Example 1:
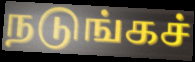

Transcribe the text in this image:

நடுங்கச்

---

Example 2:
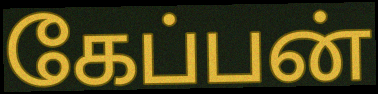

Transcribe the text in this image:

கேப்பன்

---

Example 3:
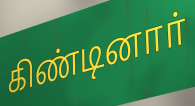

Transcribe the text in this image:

கிண்டினார்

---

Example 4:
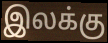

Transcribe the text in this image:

இலக்கு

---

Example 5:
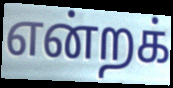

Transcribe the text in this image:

என்றக்